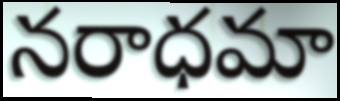
నరాధమా